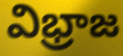
విభ్రాజ